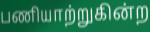
பணியாற்றுகின்ற